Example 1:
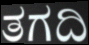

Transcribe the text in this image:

ತಗದಿ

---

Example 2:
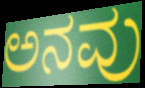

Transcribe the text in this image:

ಅನವು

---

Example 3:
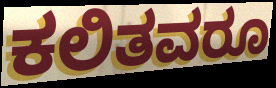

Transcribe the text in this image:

ಕಲಿತವರೂ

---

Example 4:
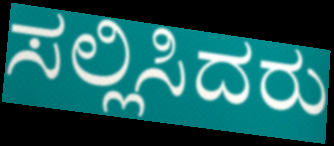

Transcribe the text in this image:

ಸಲ್ಲಿಸಿದರು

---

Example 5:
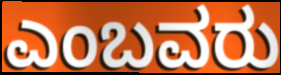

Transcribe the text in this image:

ಎಂಬವರು